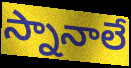
స్నానాలే